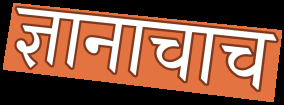
ज्ञानाचाच